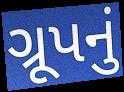
ગ્રૂપનું